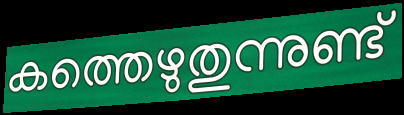
കത്തെഴുതുന്നുണ്ട്